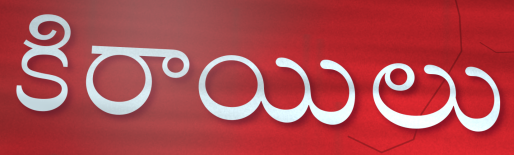
కిరాయిలు